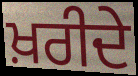
ਖ਼ਰੀਦੇ